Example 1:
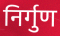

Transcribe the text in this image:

निर्गुण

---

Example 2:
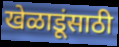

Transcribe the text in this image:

खेळाडूंसाठी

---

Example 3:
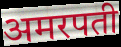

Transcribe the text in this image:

अमरपती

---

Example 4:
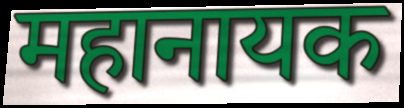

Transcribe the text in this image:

महानायक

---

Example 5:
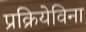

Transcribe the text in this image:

प्रक्रियेविना